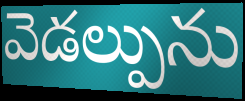
వెడల్పును